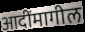
आदींमागील